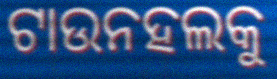
ଟାଉନହଲକୁ